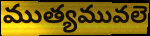
ముత్యమువలె